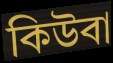
কিউবা